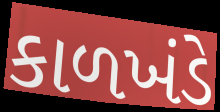
કાળખંડે